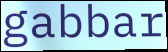
gabbar